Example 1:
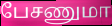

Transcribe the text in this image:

பேசணுமா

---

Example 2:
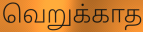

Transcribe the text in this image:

வெறுக்காத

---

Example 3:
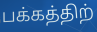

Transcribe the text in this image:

பக்கத்திற்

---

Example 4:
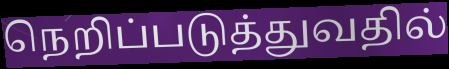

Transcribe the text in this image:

நெறிப்படுத்துவதில்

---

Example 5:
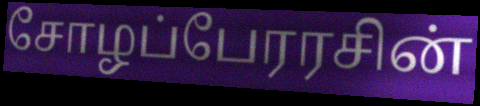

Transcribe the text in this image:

சோழப்பேரரசின்